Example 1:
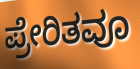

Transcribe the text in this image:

ಪ್ರೇರಿತವೂ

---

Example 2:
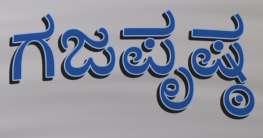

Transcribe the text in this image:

ಗಜಪೃಷ್ಠ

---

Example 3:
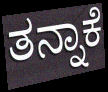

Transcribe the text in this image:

ತನ್ನಾಕೆ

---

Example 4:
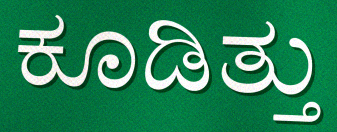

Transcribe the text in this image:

ಕೂಡಿತ್ತು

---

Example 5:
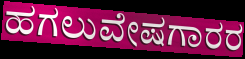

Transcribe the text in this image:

ಹಗಲುವೇಷಗಾರರ